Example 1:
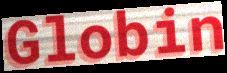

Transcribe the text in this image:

Globin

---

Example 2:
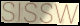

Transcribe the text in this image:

SISSW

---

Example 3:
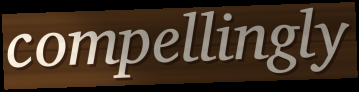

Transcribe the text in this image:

compellingly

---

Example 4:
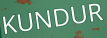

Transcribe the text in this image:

KUNDUR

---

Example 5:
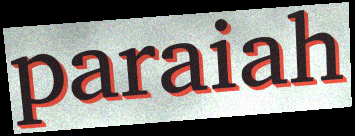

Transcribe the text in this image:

paraiah